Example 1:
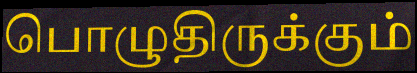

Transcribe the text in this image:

பொழுதிருக்கும்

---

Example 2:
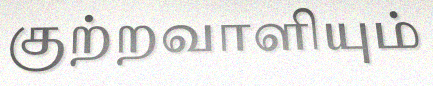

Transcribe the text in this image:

குற்றவாளியும்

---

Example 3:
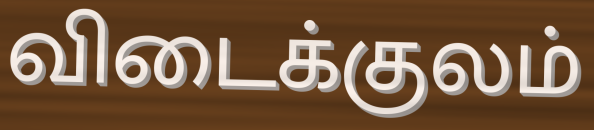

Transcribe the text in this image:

விடைக்குலம்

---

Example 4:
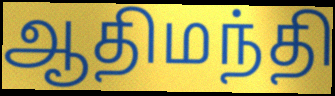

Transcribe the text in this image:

ஆதிமந்தி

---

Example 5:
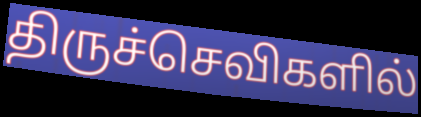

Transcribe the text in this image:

திருச்செவிகளில்